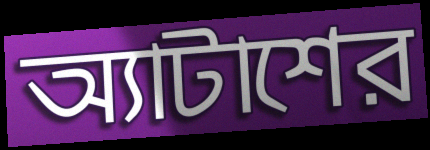
অ্যাটাশের